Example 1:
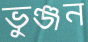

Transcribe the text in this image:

ভুঞ্জন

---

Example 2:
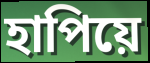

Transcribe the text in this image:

হাপিয়ে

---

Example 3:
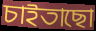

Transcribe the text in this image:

চাইতাছো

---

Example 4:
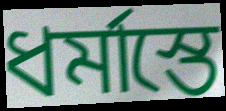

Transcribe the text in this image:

ধর্মাস্তে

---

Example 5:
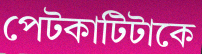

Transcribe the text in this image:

পেটকাটিটাকে